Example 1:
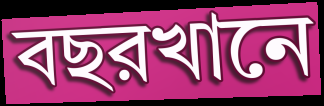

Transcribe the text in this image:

বছরখানে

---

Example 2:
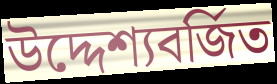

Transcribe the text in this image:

উদ্দেশ্যবর্জিত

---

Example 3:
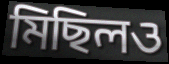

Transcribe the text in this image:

মিছিলও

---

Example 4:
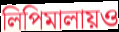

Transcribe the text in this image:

লিপিমালায়ও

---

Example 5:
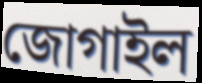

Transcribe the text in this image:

জোগাইল